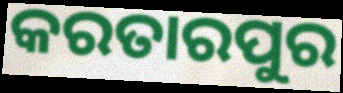
କରତାରପୁର